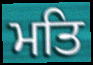
ਮਤਿ